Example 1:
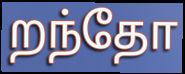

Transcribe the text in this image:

றந்தோ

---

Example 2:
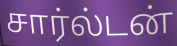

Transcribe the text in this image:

சார்ல்டன்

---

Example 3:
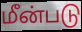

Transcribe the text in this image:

மீன்படு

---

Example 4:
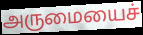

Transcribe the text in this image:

அருமையைச்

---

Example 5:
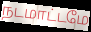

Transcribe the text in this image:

நடமாட்டமே